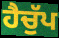
ਹੈਚੁੱਪ